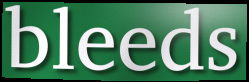
bleeds